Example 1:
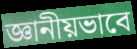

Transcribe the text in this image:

জ্ঞানীয়ভাবে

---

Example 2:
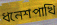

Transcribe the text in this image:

ধনেশপাখি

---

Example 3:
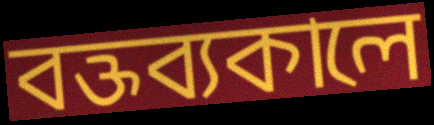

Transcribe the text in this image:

বক্তব্যকালে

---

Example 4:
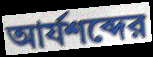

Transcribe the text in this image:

আর্যশব্দের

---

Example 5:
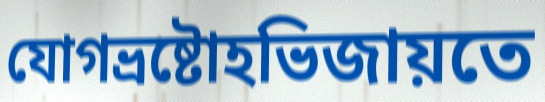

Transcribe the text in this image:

যোগভ্রষ্টোহভিজায়তে